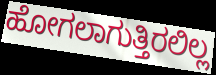
ಹೋಗಲಾಗುತ್ತಿರಲಿಲ್ಲ